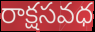
రాక్షసవధ